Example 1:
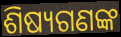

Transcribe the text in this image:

ଶିଷ୍ୟଗଣଙ୍କ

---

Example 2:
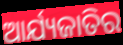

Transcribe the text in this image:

ଆର୍ଯ୍ୟଜାତିର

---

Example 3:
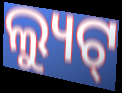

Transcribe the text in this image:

ଲ୍ୟୁଟ୍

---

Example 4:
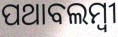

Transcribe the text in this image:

ପଥାବଲମ୍ବୀ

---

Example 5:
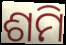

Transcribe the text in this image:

ଶମି